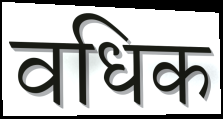
वधिक